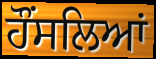
ਹੌਂਸਲਿਆਂ